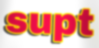
supt